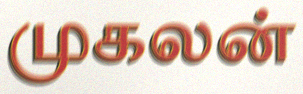
முகலன்